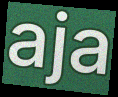
aja